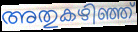
അതുകഴിഞ്ഞ്